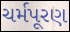
ચર્મપૂરણ